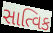
સાત્વિક